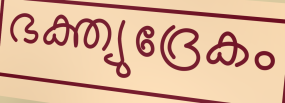
ഭക്ത്യുദ്രേകം